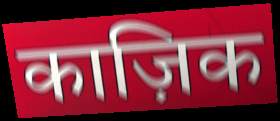
काज़िक